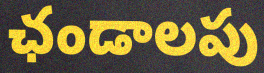
ఛండాలపు